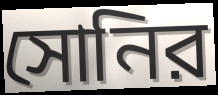
সোনির